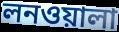
লনওয়ালা